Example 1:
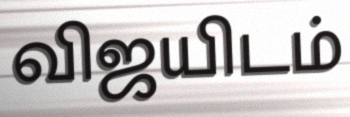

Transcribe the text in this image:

விஜயிடம்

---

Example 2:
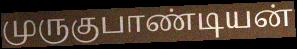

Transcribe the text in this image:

முருகுபாண்டியன்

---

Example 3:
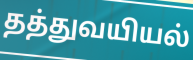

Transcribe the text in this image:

தத்துவயியல்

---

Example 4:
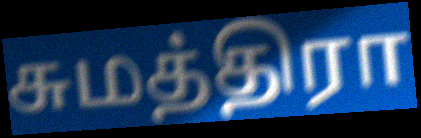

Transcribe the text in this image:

சுமத்திரா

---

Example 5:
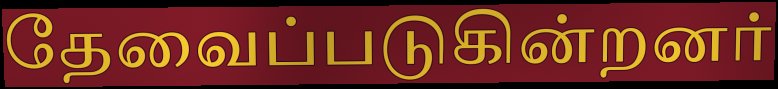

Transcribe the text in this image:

தேவைப்படுகின்றனர்